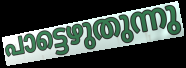
പാട്ടെഴുതുന്നു